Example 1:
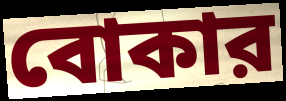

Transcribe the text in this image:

বোকার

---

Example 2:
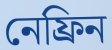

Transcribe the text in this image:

নেফ্রিন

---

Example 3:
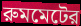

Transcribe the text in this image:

রুমমেটের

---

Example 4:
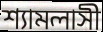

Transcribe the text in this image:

শ্যামলাসী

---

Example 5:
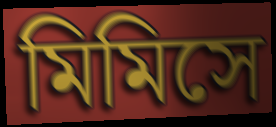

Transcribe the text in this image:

মিমিসে